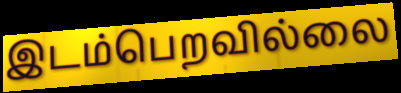
இடம்பெறவில்லை